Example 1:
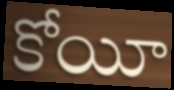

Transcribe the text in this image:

కోయీ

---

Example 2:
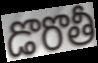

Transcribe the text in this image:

డొరొతీ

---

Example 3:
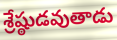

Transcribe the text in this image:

శ్రేష్ఠుడవుతాడు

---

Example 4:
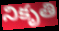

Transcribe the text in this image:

నికృతి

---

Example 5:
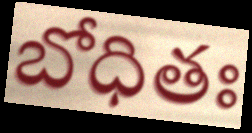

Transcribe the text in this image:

బోధితః